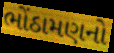
ભોંઠામણનો